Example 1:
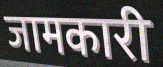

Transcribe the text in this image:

जामकारी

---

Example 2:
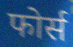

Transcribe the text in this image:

फोर्स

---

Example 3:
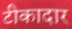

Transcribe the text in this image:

टीकादार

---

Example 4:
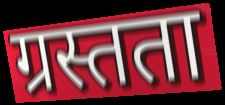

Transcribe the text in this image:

ग्रस्तता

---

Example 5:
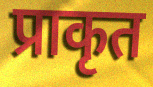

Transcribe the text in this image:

प्राकृत